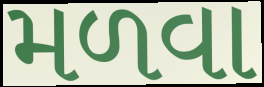
મળવા